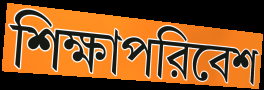
শিক্ষাপরিবেশ